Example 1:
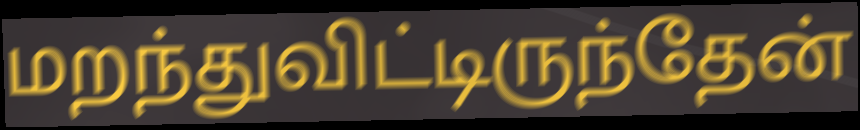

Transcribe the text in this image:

மறந்துவிட்டிருந்தேன்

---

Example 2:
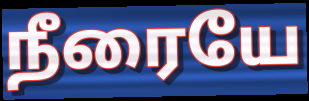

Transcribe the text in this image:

நீரையே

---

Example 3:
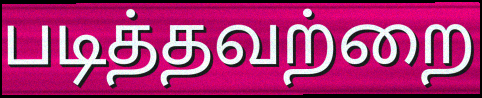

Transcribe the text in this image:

படித்தவற்றை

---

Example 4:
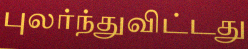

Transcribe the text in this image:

புலர்ந்துவிட்டது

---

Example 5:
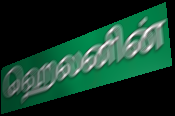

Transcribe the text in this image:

ஹெலனின்